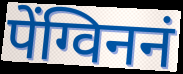
पेंग्विननं